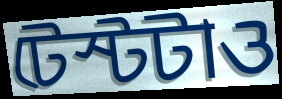
টেস্টটাও